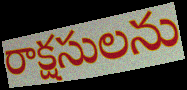
రాక్షసులను